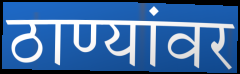
ठाण्यांवर